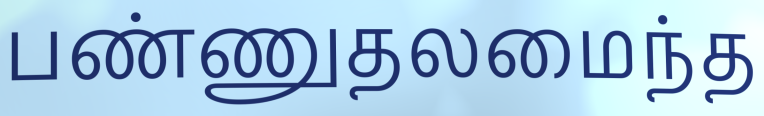
பண்ணுதலமைந்த